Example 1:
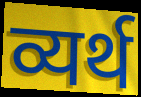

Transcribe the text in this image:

व्यर्थ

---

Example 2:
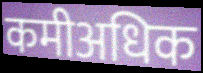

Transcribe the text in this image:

कमीअधिक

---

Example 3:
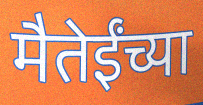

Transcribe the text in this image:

मैतेईंच्या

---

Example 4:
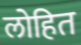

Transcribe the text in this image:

लोहित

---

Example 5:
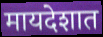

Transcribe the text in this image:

मायदेशात